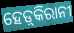
ହେଡ଼୍‌କିରାନୀ